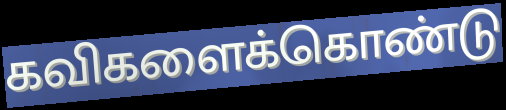
கவிகளைக்கொண்டு